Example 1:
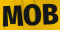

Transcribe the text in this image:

MOB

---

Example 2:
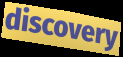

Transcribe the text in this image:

discovery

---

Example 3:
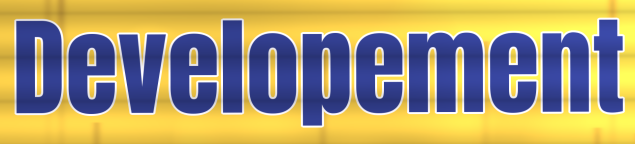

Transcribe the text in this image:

Developement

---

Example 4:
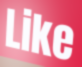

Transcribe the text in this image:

Like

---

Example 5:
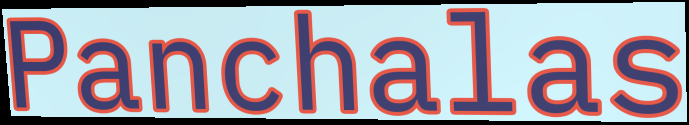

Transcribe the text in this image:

Panchalas